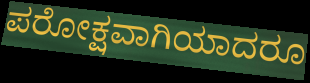
ಪರೋಕ್ಷವಾಗಿಯಾದರೂ